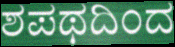
ಶಪಥದಿಂದ